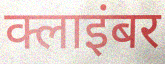
क्लाइंबर